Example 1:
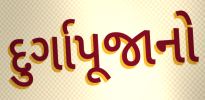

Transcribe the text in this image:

દુર્ગાપૂજાનો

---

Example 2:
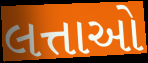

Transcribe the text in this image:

લત્તાઓ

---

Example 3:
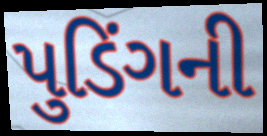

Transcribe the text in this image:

પુડિંગની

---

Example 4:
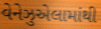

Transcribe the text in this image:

વેનેઝુએલામાંથી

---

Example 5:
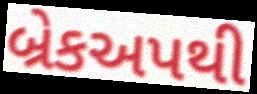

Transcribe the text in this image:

બ્રેકઅપથી